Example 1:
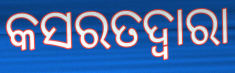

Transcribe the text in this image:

କସରତଦ୍ୱାରା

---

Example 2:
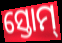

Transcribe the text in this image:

ସ୍ତୋମ୍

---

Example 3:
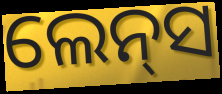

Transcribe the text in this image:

ଲେନ୍‍ସ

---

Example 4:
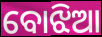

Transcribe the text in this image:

ବୋଝିଆ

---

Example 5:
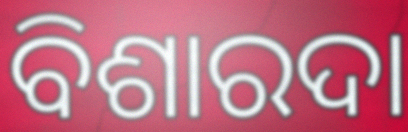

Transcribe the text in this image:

ବିଶାରଦା